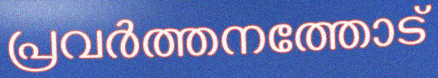
പ്രവർത്തനത്തോട്